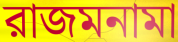
রাজমনামা